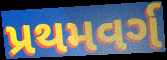
પ્રથમવર્ગ